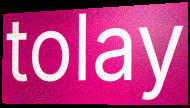
tolay